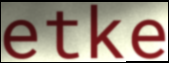
etke